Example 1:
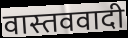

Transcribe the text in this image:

वास्तववादी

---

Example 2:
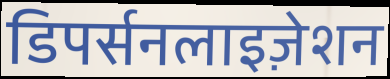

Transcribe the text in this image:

डिपर्सनलाइज़ेशन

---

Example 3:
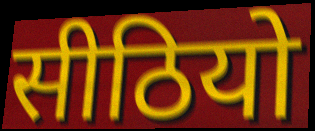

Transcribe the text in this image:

सीठियो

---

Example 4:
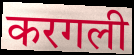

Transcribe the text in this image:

करगली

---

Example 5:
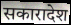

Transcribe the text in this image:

सकारादेश